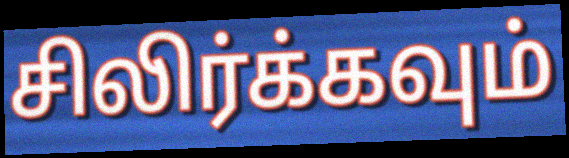
சிலிர்க்கவும்